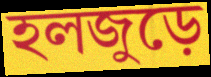
হলজুড়ে